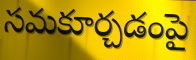
సమకూర్చడంపై